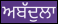
ਅਬੱਦੁਲਾ